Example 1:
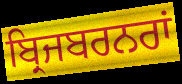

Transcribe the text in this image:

ਬ੍ਰਿਜਬਰਨਰਾਂ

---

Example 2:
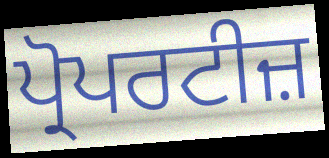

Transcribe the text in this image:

ਪ੍ਰੋਪਰਟੀਜ਼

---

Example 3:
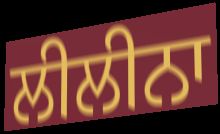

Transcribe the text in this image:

ਲੀਲੀਨਾ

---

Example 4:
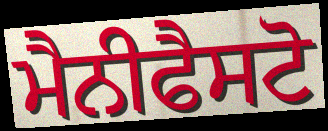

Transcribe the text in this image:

ਮੈਨੀਫੈਸਟੋ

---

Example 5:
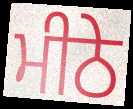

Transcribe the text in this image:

ਮੀਠੇ